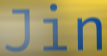
Jin